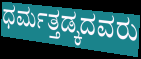
ಧರ್ಮತ್ತಡ್ಕದವರು